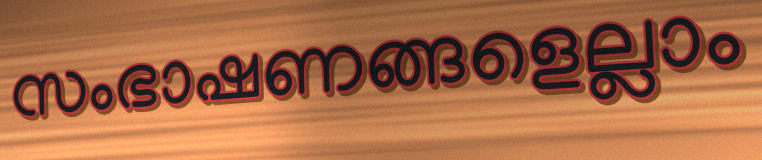
സംഭാഷണങ്ങളെല്ലാം